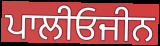
ਪਾਲੀਓਜੀਨ